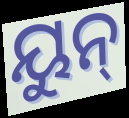
ୟୁନ୍